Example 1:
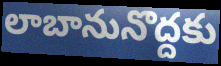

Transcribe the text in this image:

లాబానునొద్దకు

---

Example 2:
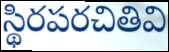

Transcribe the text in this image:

స్థిరపరచితివి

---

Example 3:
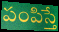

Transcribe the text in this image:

పంపిస్తే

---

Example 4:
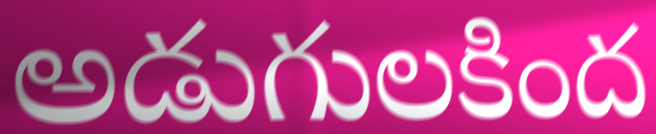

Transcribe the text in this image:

అడుగులకింద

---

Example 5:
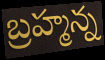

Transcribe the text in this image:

బ్రహ్మన్న